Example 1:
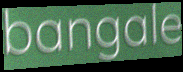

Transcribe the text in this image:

bangale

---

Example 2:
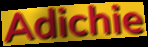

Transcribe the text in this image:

Adichie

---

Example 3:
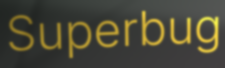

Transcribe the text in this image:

Superbug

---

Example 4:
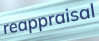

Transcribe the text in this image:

reappraisal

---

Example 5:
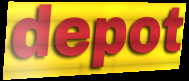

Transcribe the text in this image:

depot